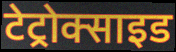
टेट्रोक्साइड